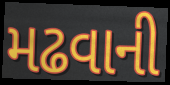
મઢવાની